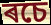
ৰচে